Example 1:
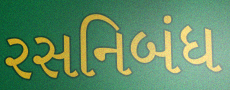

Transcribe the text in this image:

રસનિબંધ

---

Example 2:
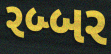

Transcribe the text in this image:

રબ્બર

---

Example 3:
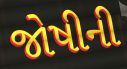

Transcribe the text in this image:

જોષીની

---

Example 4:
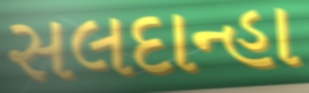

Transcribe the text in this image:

સલદાન્હા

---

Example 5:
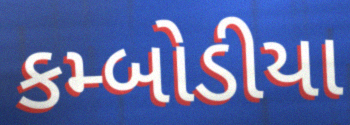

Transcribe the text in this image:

કમ્બોડીયા